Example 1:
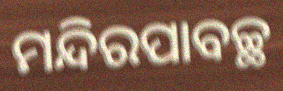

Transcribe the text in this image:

ମନ୍ଦିରପାବଚ୍ଛ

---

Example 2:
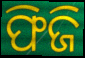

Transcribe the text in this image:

ଫିଜି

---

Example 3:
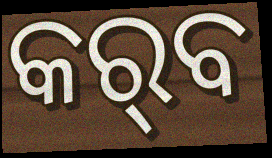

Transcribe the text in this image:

କର୍‌ବ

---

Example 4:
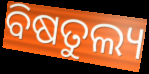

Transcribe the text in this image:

ବିଷତୁଲ୍ୟ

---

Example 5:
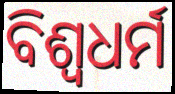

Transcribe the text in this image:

ବିଶ୍ବଧର୍ମ